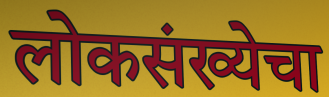
लोकसंख्येचा